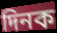
দিনক